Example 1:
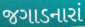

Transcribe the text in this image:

જગાડનારાં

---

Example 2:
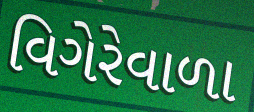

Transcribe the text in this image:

વિગેરેવાળા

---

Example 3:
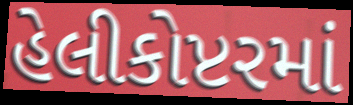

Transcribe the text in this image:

હેલીકોપ્ટરમાં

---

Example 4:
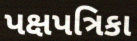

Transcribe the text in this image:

પક્ષપત્રિકા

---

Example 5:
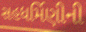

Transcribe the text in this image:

સહધર્મિણીની